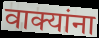
वाक्यांना